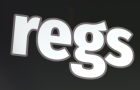
regs